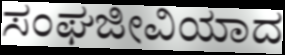
ಸಂಘಜೀವಿಯಾದ